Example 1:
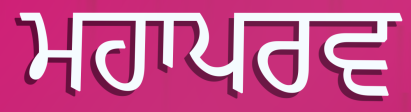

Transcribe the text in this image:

ਮਹਾਪਰਵ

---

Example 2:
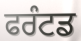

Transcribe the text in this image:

ਫਰੰਟਡ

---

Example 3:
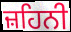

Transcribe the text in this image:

ਜ਼ਹਿਨੀ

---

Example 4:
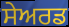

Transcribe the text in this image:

ਸੇਅਰਡ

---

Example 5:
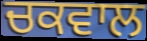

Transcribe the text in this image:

ਚਕਵਾਲ